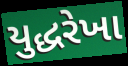
યુદ્ધરેખા